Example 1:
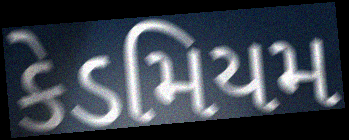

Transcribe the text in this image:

કેડમિયમ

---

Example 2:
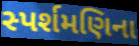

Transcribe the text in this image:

સ્પર્શમણિના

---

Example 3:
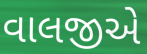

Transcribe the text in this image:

વાલજીએ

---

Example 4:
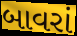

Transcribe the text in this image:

બાવરાં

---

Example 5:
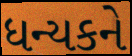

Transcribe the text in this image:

ધન્યકને